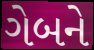
ગેબને